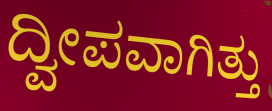
ದ್ವೀಪವಾಗಿತ್ತು